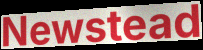
Newstead